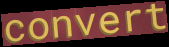
convert